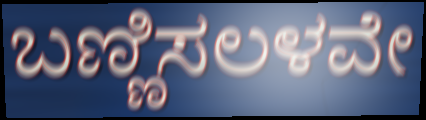
ಬಣ್ಣಿಸಲಳವೇ